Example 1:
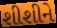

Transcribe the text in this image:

શીશીને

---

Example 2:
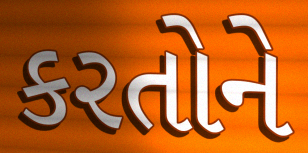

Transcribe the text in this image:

કરતોને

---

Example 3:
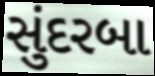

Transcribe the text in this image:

સુંદરબા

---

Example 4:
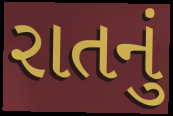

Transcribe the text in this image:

રાતનું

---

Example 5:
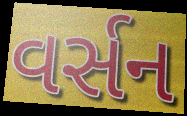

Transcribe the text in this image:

વર્સન